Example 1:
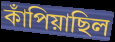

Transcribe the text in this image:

কাঁপিয়াছিল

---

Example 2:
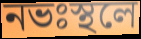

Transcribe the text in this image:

নভঃস্থলে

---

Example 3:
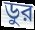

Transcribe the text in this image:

ডুর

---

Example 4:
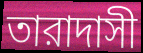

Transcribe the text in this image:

তারাদাসী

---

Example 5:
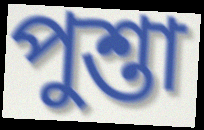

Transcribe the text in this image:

পুশ্তা